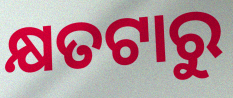
କ୍ଷତଟାରୁ